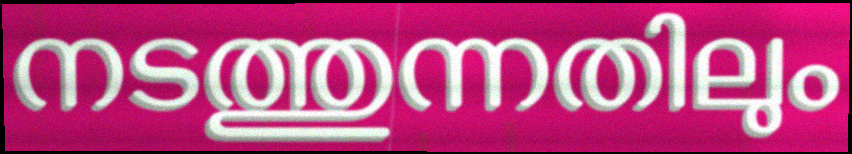
നടത്തുന്നതിലും